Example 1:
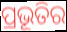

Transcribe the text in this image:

ପ୍ରଭୂତିର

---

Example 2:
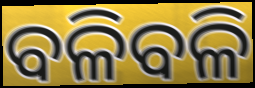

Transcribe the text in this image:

ବଳିବଳି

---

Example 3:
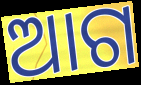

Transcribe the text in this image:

ଆଗ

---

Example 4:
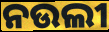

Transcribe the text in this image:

ନଉଲୀ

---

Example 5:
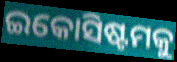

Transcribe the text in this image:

ଇକୋସିଷ୍ଟମକୁ